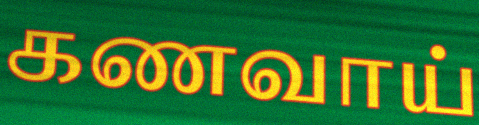
கணவாய்